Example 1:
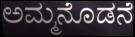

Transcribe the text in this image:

ಅಮ್ಮನೊಡನೆ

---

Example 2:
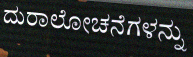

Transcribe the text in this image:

ದುರಾಲೋಚನೆಗಳನ್ನು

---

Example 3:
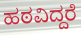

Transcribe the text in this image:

ಹಠವಿದ್ದರೆ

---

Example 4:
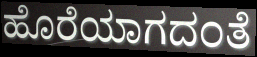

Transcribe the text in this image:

ಹೊರೆಯಾಗದಂತೆ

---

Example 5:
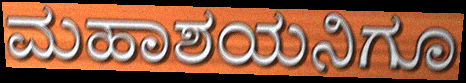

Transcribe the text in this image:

ಮಹಾಶಯನಿಗೂ